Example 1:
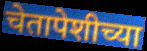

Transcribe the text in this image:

चेतापेशीच्या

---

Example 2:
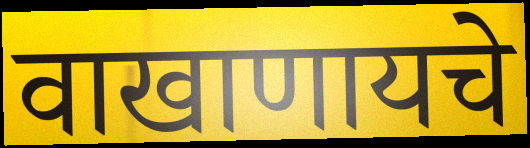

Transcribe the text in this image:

वाखाणायचे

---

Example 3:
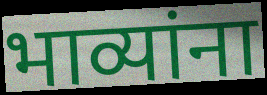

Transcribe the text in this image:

भाव्यांना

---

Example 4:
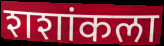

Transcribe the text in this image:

शशांकला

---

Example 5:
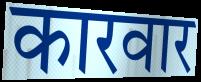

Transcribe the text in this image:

कारवार